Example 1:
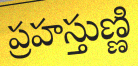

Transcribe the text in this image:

ప్రహస్తుణ్ణి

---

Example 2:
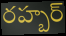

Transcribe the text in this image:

రహ్బర్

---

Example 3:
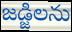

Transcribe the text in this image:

జడ్జిలను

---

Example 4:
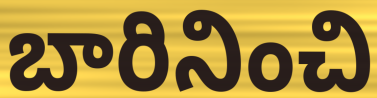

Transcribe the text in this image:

బారినించి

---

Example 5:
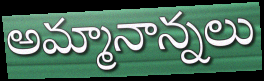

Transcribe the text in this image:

అమ్మానాన్నలు